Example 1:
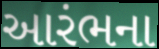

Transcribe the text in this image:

આરંભના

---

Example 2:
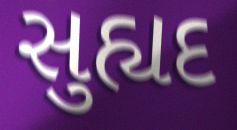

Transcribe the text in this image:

સુહ્યદ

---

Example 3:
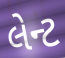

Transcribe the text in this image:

લેન્ટ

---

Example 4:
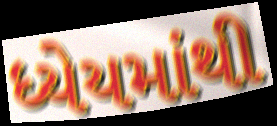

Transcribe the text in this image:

ધ્યેયમાંથી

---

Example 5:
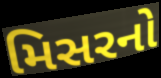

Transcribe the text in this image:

મિસરનો